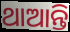
ଥାଆନ୍ତି